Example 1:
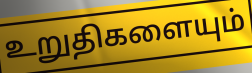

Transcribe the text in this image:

உறுதிகளையும்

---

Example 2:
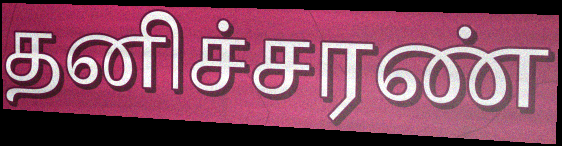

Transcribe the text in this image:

தனிச்சரண்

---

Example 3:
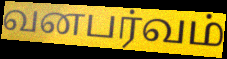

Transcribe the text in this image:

வனபர்வம்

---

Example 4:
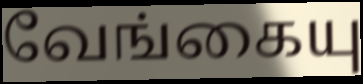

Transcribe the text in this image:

வேங்கையு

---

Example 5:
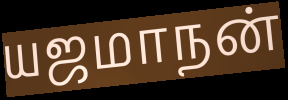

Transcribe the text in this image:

யஜமாநன்